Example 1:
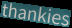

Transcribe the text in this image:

thankies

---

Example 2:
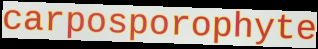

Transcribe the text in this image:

carposporophyte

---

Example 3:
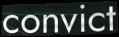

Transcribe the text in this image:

convict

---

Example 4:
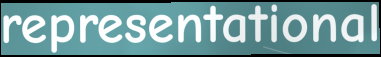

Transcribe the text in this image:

representational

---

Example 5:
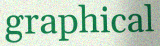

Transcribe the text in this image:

graphical